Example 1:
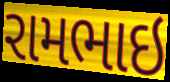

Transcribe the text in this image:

રામભાઇ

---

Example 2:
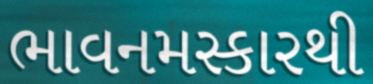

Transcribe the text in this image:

ભાવનમસ્કારથી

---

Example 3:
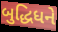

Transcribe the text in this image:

બુદ્ધિધને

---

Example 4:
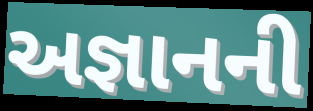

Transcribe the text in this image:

અજ્ઞાનની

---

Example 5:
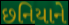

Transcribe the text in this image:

છનિયાને